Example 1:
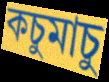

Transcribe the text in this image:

কচুমাচু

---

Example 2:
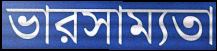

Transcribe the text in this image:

ভারসাম্যতা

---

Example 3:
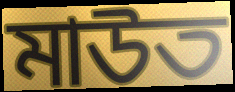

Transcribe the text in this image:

মাউত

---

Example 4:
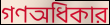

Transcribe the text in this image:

গণঅধিকার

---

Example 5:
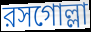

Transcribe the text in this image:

রসগোল্লা